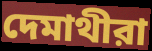
দেমাথীরা